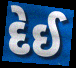
દેઈ